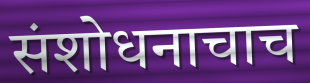
संशोधनाचाच